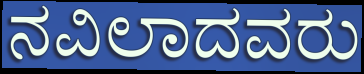
ನವಿಲಾದವರು